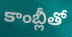
కాంబ్లీతో